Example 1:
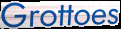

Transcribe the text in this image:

Grottoes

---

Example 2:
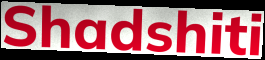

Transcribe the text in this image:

Shadshiti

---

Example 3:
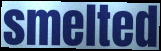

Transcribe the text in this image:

smelted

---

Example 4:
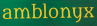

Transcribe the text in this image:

amblonyx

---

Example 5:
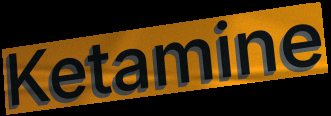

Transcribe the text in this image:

Ketamine